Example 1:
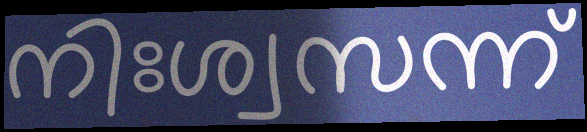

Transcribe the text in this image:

നിഃശ്വസന്ന്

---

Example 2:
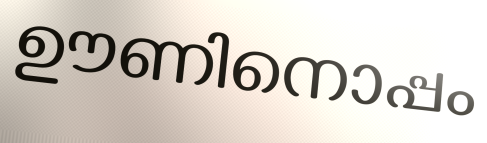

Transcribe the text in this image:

ഊണിനൊപ്പം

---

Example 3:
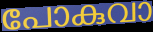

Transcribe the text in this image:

പോകുവാ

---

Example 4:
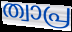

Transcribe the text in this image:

ത്വാപ്ര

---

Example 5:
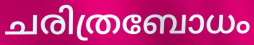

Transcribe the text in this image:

ചരിത്രബോധം